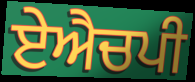
ਏਐਚਪੀ